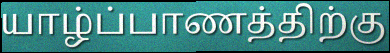
யாழ்ப்பாணத்திற்கு